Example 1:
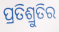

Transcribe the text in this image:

ପ୍ରତିଶ୍ରୁତିର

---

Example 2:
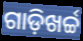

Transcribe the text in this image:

ଗାଡ଼ିଖର୍ଚ୍ଚ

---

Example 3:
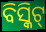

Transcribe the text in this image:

ବିସ୍କିଟ୍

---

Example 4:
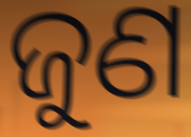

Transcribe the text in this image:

ଜୁଣ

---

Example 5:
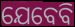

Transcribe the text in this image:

ଯେବେବି